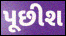
પૂછીશ